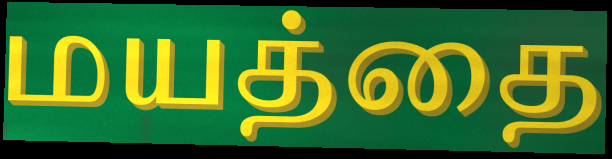
மயத்தை